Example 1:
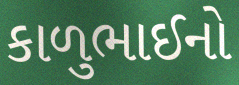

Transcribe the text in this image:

કાળુભાઈનો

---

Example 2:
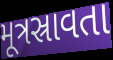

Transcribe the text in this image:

મૂત્રસ્રાવતા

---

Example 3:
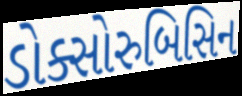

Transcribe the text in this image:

ડોક્સોરુબિસિન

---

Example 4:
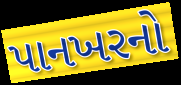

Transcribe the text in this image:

પાનખરનો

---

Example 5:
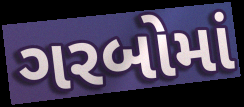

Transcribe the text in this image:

ગરબોમાં